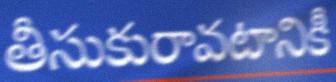
తీసుకురావటానికీ